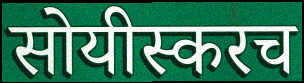
सोयीस्करच